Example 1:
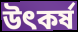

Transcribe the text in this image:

উৎকৰ্ষ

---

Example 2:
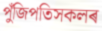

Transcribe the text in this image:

পুঁজিপতিসকলৰ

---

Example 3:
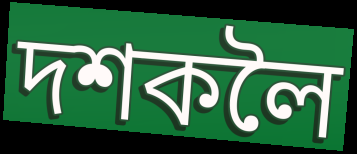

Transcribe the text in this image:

দশকলৈ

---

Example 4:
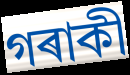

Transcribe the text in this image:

গৰাকী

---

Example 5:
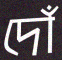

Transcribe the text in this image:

দোঁ